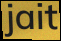
jait